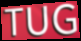
TUG